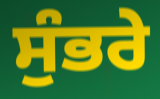
ਸੁੰਭਰੇ